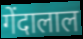
गेंदालाल